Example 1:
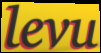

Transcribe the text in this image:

levu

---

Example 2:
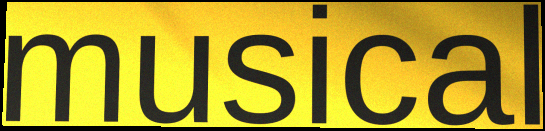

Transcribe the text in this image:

musical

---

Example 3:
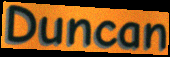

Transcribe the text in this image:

Duncan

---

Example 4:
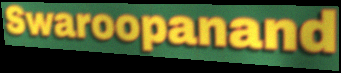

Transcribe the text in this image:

Swaroopanand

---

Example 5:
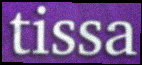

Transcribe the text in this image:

tissa